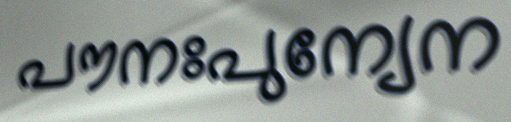
പൗനഃപുന്യേന